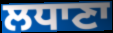
ਲਧਾਣਾ